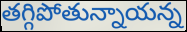
తగ్గిపోతున్నాయన్న